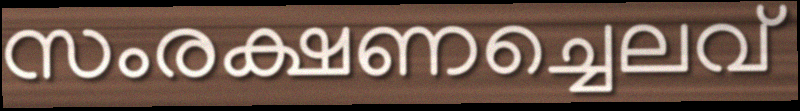
സംരക്ഷണച്ചെലവ്